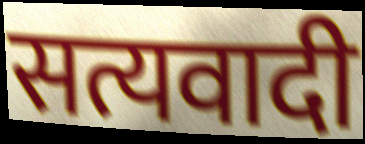
सत्यवादी